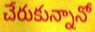
చేరుకున్నానో